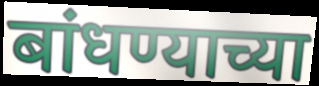
बांधण्याच्या